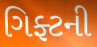
ગિફ્ટની